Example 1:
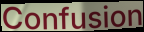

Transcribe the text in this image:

Confusion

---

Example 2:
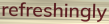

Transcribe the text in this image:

refreshingly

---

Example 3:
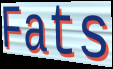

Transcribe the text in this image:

Fats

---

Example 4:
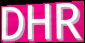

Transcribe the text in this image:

DHR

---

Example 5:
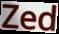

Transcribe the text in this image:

Zed